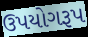
ઉપયોગરૂપ